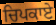
ਚਿਪਕਾਏ